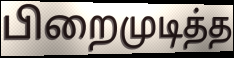
பிறைமுடித்த